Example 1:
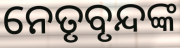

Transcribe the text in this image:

ନେତୃବୃନ୍ଦଙ୍କ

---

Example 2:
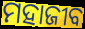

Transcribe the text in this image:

ମହାଜୀବ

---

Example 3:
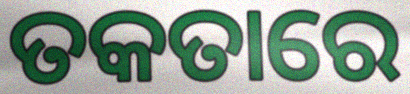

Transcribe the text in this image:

ତକତାରେ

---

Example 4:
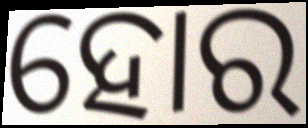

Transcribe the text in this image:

ହୋର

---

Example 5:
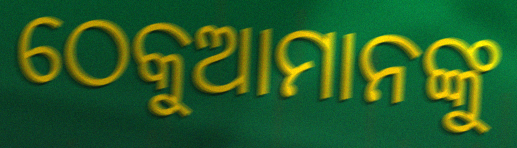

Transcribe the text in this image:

ଠେକୁଆମାନଙ୍କୁ